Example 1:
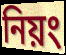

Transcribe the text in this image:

নিয়ং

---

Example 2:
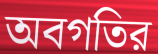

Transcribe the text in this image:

অবগতির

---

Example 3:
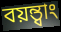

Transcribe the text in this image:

বয়ন্ত্বাং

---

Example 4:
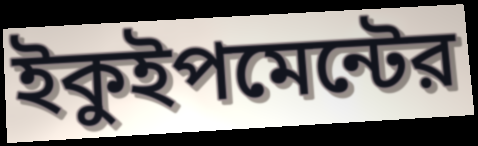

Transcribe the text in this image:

ইকুইপমেন্টের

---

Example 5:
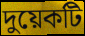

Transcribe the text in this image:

দুয়েকটি